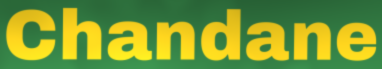
Chandane